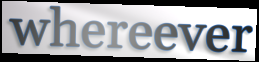
whereever